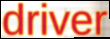
driver